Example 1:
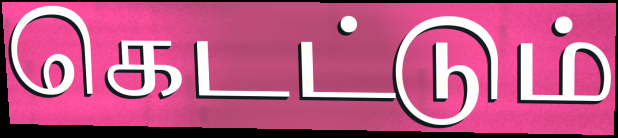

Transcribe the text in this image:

கெடட்டும்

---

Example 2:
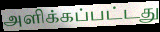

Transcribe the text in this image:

அளிக்கப்பட்டது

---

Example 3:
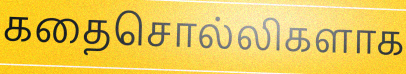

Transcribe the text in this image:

கதைசொல்லிகளாக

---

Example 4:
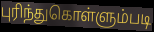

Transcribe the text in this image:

புரிந்துகொள்ளும்படி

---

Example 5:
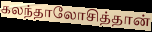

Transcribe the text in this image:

கலந்தாலோசித்தான்